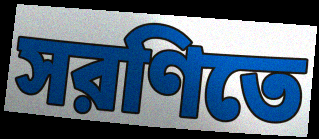
সরণিতে